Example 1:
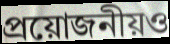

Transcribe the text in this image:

প্রয়োজনীয়ও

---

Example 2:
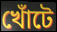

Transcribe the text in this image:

খোঁটে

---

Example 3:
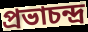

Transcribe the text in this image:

প্রভাচন্দ্র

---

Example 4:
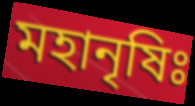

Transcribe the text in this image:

মহানৃষিঃ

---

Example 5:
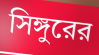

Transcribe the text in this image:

সিঙ্গুরের